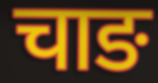
चाङ